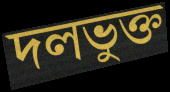
দলভুক্ত